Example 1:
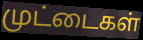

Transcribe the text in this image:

முட்டைகள்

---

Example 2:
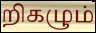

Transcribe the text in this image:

றிகழும்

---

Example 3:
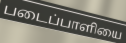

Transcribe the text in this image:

படைப்பாளியை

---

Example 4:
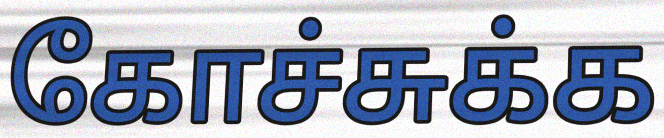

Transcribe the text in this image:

கோச்சுக்க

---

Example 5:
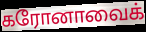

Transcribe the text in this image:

கரோனாவைக்